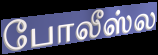
போலீஸ்ல